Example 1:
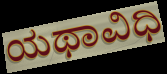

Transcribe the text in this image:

ಯಥಾವಿಧಿ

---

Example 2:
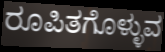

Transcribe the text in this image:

ರೂಪಿತಗೊಳ್ಳುವ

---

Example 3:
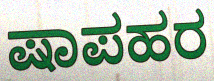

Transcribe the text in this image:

ಷಾಪಹರ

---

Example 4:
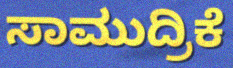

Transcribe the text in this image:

ಸಾಮುದ್ರಿಕೆ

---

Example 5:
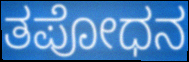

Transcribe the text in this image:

ತಪೋಧನ